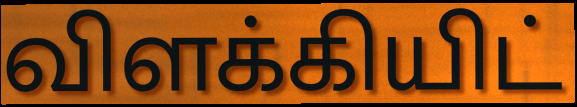
விளக்கியிட்